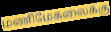
மணிமேகலைக்கு